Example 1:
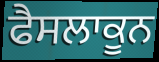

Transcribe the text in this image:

ਫੈਸਲਾਕੂਨ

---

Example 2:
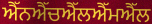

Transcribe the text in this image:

ਐੱਨਐੱਚਐੱਲਐੱਮਐੱਲ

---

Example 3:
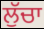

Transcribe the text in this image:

ਲੁੱਚਾ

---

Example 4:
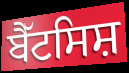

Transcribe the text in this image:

ਬੈੱਟਸਿਸ਼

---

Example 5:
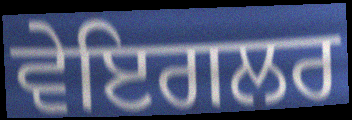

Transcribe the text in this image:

ਵੇਇਗਲਰ